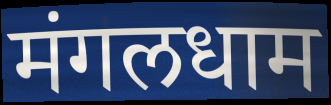
मंगलधाम